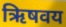
ऋिषवय